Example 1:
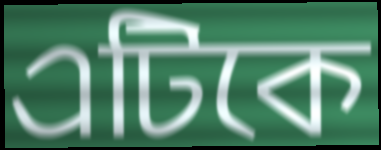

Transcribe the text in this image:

এটিকে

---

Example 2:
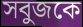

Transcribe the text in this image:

সবুজকে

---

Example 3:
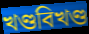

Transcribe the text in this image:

খণ্ডবিখণ্ড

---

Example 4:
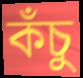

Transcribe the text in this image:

কঁচু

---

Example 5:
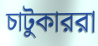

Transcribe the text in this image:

চাটুকাররা